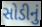
સોડીનું